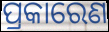
ପ୍ରକାରେଣ